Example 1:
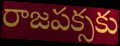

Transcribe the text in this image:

రాజపక్సకు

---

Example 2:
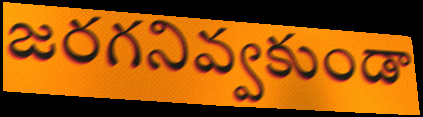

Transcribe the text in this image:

జరగనివ్వకుండా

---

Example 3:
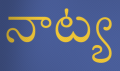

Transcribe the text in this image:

నాట్య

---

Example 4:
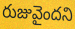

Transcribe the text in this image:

రుజువైందని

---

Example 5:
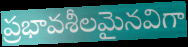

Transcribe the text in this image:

ప్రభావశీలమైనవిగా